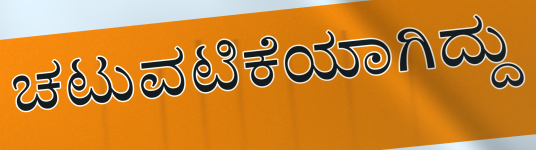
ಚಟುವಟಿಕೆಯಾಗಿದ್ದು